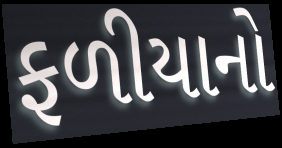
ફળીયાનો